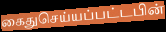
கைதுசெய்யப்பட்டபின்